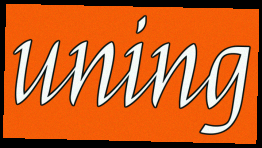
uning